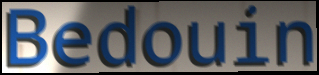
Bedouin